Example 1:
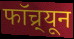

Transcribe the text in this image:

फॉच्र्यून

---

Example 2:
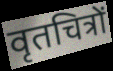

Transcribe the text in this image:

वृतचित्रों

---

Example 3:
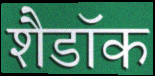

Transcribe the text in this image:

शैडॉक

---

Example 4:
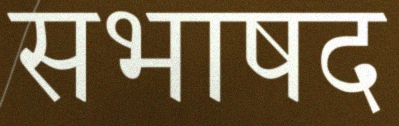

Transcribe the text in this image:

सभाषद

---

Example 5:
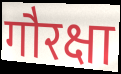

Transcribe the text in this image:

गौरक्षा